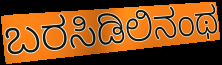
ಬರಸಿಡಿಲಿನಂಥ